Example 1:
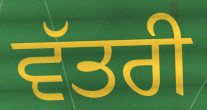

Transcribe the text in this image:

ਵੱਤਰੀ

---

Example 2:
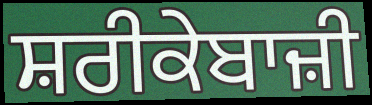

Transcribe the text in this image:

ਸ਼ਰੀਕੇਬਾਜ਼ੀ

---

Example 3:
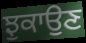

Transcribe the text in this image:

ਝੁਕਾਉਣ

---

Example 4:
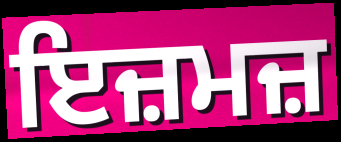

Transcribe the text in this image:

ਇਜ਼ਮਜ਼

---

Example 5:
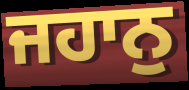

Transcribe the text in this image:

ਜਹਾਨੁ